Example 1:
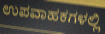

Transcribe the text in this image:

ಉಪವಾಹಕಗಳಲ್ಲಿ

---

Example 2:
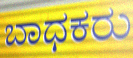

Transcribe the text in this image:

ಬಾಧಕರು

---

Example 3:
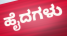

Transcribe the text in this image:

ಹೈದಗಳು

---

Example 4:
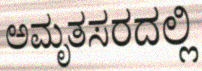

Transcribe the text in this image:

ಅಮೃತಸರದಲ್ಲಿ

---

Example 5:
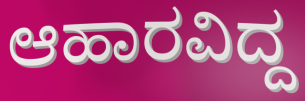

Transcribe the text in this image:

ಆಹಾರವಿದ್ದ